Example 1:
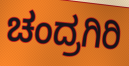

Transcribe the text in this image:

ಚಂದ್ರಗಿರಿ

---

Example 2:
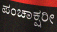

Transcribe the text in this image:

ಪಂಚಾಕ್ಷರೀ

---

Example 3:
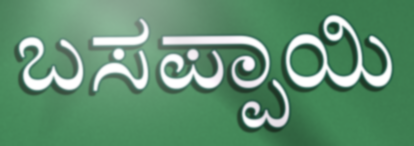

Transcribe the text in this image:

ಬಸಪ್ಪಾಯಿ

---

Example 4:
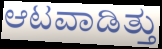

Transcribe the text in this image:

ಆಟವಾಡಿತ್ತು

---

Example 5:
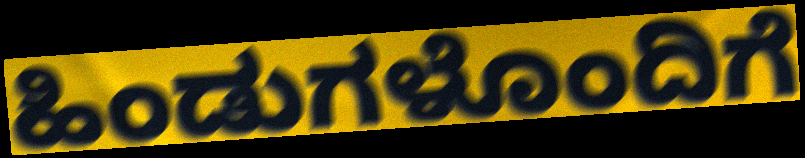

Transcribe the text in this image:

ಹಿಂಡುಗಳೊಂದಿಗೆ